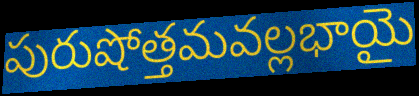
పురుషోత్తమవల్లభాయై